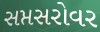
સપ્તસરોવર